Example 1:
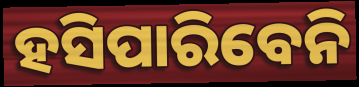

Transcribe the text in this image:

ହସିପାରିବେନି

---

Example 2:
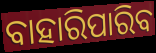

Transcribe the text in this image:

ବାହାରିପାରିବ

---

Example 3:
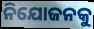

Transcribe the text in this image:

ନିଯୋଜନକୁ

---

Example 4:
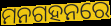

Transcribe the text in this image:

ମନଗହନରେ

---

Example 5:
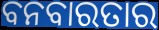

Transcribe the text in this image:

ବନବାରତାର